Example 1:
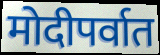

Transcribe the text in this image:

मोदीपर्वात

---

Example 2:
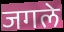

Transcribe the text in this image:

जगले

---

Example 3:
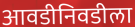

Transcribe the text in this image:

आवडीनिवडीला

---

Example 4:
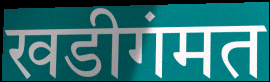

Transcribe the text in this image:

खडीगंमत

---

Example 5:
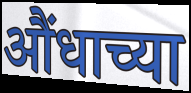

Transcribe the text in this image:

औंधाच्या